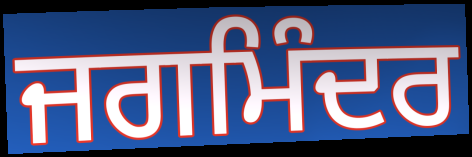
ਜਗਮਿੰਦਰ